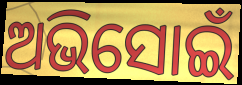
ଅଭିସୋଇଁ